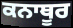
ਕਨਾਥੂਰ